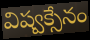
విష్వక్సేనం